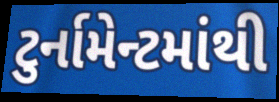
ટુર્નામેન્ટમાંથી